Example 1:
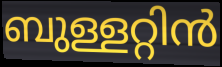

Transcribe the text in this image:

ബുള്ളറ്റിൻ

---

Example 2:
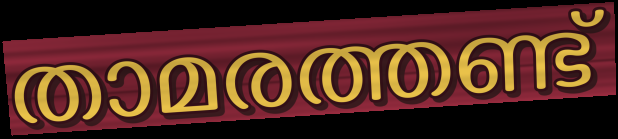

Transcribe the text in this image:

താമരത്തണ്ട്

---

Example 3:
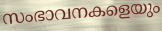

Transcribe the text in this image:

സംഭാവനകളെയും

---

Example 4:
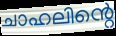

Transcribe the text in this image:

ചാഹലിന്റെ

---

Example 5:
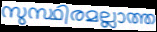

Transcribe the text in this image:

സുസ്ഥിരമല്ലാത്ത